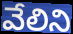
వేలిని